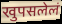
खुपसलेलं